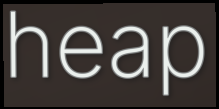
heap